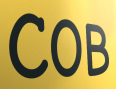
COB